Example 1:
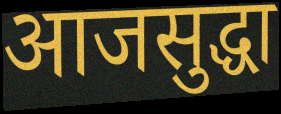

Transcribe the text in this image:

आजसुद्धा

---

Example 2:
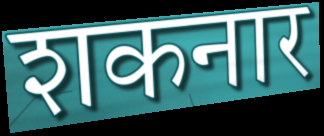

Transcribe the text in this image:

शकनार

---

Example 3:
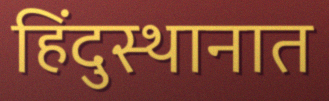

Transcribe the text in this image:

हिंदुस्थानात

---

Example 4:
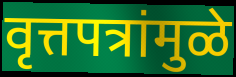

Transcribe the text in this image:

वृत्तपत्रांमुळे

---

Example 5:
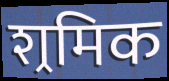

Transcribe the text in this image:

श्रमिक